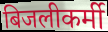
बिजलीकर्मी